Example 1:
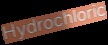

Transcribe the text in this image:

Hydrochloric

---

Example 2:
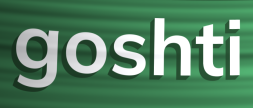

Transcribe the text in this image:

goshti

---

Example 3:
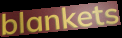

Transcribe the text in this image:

blankets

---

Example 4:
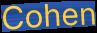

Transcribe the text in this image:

Cohen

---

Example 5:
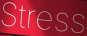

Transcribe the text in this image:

Stress